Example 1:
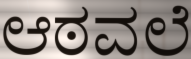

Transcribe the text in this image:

ಆಠವಲೆ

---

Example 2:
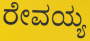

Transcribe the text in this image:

ರೇವಯ್ಯ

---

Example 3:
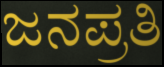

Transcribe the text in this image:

ಜನಪ್ರತಿ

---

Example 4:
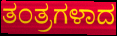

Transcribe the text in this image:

ತಂತ್ರಗಳಾದ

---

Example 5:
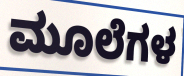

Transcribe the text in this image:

ಮೂಲೆಗಳ